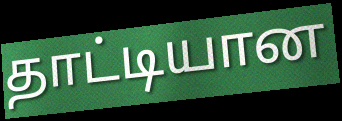
தாட்டியான